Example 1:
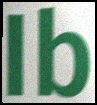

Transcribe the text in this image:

Ib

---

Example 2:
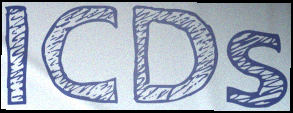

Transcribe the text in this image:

ICDs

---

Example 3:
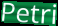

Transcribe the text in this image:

Petri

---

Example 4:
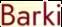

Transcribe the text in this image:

Barki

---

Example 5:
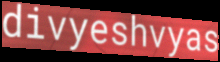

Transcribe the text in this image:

divyeshvyas